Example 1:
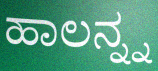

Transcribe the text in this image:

ಹಾಲನ್ನ್ನ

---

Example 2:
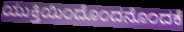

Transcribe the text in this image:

ಯುಕ್ತಿಯಿಂದೊಂದನೊಂದಕೆ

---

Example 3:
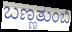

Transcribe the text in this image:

ಬಣ್ಣತುಂಬಿ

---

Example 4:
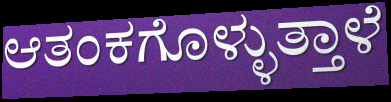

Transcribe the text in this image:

ಆತಂಕಗೊಳ್ಳುತ್ತಾಳೆ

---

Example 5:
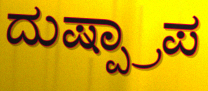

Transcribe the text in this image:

ದುಷ್ಪ್ರಾಪ